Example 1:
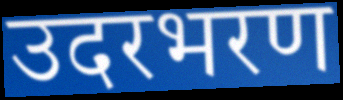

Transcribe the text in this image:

उदरभरण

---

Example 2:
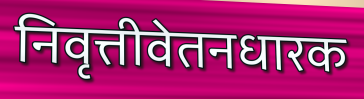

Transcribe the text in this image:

निवृत्तीवेतनधारक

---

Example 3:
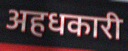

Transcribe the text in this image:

अहधकारी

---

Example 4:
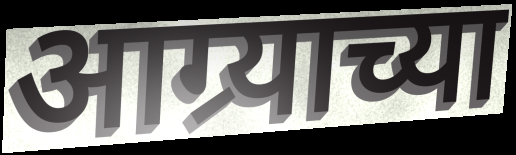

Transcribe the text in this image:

आग्र्याच्या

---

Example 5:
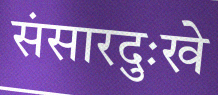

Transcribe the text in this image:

संसारदुःखे